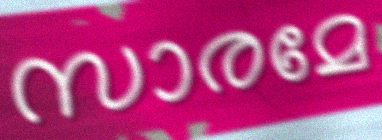
സാരമേ